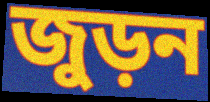
জুড়ন